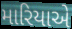
મારિયાએ